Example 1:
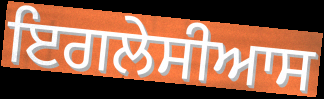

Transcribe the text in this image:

ਇਗਲੇਸੀਆਸ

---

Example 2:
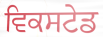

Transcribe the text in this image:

ਵਿਕਸਟੇਡ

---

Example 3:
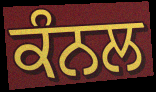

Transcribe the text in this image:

ਕੰਨਲ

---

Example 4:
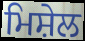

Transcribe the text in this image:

ਮਿਸ਼ੇਲ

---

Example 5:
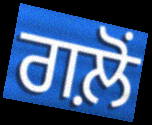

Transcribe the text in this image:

ਗਲ਼ੋਂ